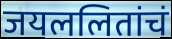
जयललितांचं